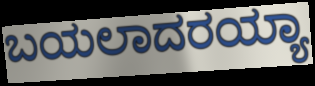
ಬಯಲಾದರಯ್ಯಾ